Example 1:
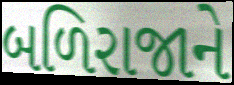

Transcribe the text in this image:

બળિરાજાને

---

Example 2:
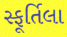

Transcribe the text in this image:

સ્ફૂર્તિલા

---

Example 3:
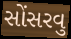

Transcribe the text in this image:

સોંસરવુ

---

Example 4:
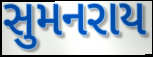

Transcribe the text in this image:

સુમનરાય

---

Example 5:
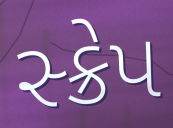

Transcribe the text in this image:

સ્ક્રેપ